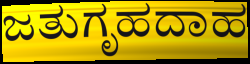
ಜತುಗೃಹದಾಹ